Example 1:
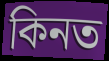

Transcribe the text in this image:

কিনত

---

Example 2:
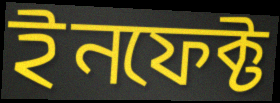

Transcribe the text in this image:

ইনফেক্ট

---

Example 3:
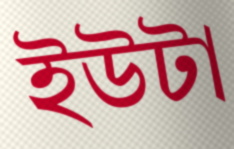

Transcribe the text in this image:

ইউটা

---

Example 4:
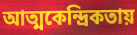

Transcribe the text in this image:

আত্মকেন্দ্রিকতায়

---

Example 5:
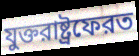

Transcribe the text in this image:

যুক্তরাষ্ট্রফেরত